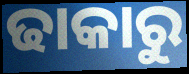
ଢାକାରୁ